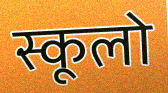
स्कूलो